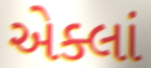
એક્લાં